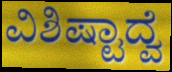
ವಿಶಿಷ್ಟಾದ್ವೆ